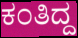
ಕಂತಿದ್ದ